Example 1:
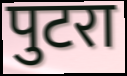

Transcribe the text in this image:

पुटरा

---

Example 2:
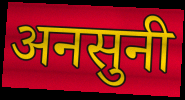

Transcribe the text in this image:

अनसुनी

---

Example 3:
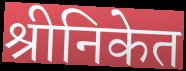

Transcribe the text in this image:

श्रीनिकेत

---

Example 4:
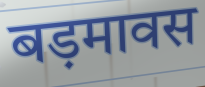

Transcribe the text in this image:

बड़मावस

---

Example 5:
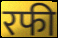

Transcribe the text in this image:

रफी